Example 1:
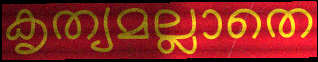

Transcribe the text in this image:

കൃത്യമല്ലാതെ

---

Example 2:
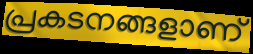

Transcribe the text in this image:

പ്രകടനങ്ങളാണ്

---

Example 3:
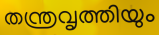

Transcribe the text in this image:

തന്ത്രവൃത്തിയും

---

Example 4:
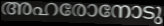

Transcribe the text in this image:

അഹരോനോടു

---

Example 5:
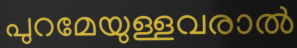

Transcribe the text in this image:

പുറമേയുള്ളവരാൽ